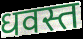
धवस्त